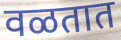
वळतात